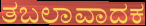
ತಬಲಾವಾದಕ